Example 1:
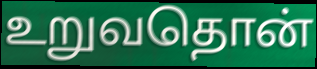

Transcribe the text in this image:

உறுவதொன்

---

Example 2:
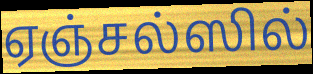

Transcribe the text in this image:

ஏஞ்சல்ஸில்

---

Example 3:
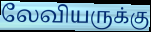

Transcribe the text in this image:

லேவியருக்கு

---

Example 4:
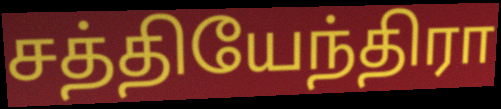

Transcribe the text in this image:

சத்தியேந்திரா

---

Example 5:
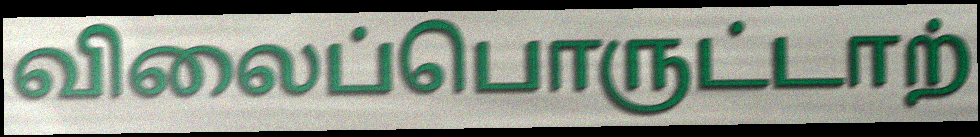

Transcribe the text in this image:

விலைப்பொருட்டாற்